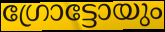
ഗ്രോട്ടോയും